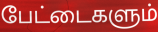
பேட்டைகளும்